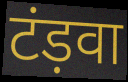
टंड़वा